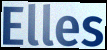
Elles